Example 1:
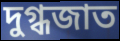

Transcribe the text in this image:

দুগ্ধজাত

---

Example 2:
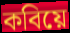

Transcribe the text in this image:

কবিয়ে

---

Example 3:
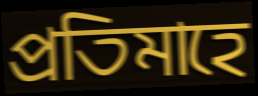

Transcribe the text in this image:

প্ৰতিমাহে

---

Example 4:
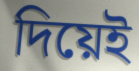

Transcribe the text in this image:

দিয়েই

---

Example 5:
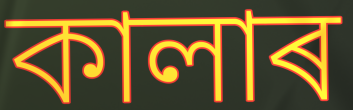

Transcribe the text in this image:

কালাৰ